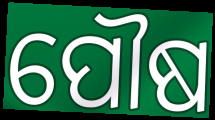
ପୌଷ